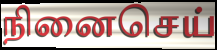
நினைசெய்